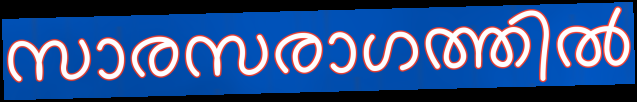
സാരസരാഗത്തിൽ